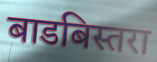
बाडबिस्तरा